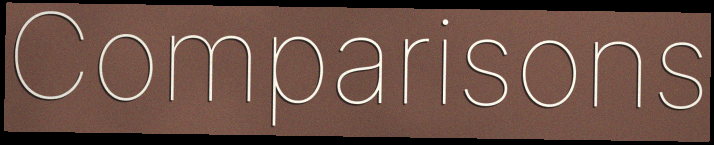
Comparisons